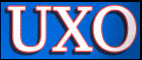
UXO